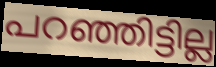
പറഞ്ഞിട്ടില്ല